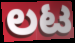
ಲಟ